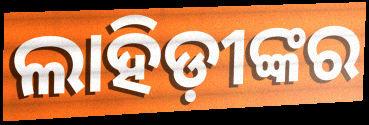
ଲାହିଡ଼ୀଙ୍କର